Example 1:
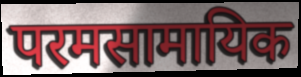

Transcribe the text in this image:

परमसामायिक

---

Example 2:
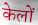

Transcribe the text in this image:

केलों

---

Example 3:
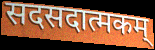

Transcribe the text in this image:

सदसदात्मकम्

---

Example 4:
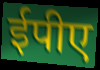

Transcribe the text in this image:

ईपीए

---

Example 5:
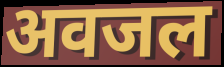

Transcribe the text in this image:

अवजल